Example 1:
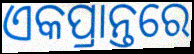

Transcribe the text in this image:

ଏକପ୍ରାନ୍ତରେ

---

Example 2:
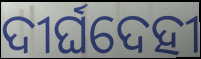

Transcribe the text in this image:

ଦୀର୍ଘଦେହୀ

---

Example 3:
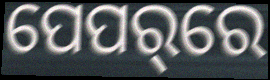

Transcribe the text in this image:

ପେପର୍‌ରେ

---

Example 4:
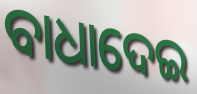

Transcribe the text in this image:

ବାଧାଦେଇ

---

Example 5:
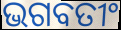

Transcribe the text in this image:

ଭଗବତୀଂ